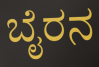
ಬೈರನ